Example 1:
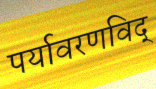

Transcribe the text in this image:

पर्यावरणविद्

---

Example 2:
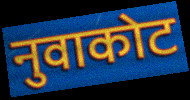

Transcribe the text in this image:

नुवाकोट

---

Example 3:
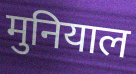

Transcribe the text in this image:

मुनियाल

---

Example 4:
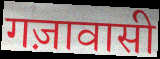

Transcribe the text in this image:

गज़ावासी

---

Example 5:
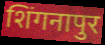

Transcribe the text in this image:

शिंगनापुर